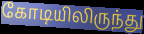
கோடியிலிருந்து